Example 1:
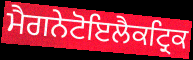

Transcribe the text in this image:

ਮੈਗਨੇਟੋਇਲੈਕਟ੍ਰਿਕ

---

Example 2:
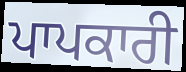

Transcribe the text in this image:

ਪਾਪਕਾਰੀ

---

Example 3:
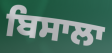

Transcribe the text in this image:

ਬਿਸਾਲਾ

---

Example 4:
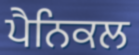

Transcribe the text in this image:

ਪੈਨਿਕਲ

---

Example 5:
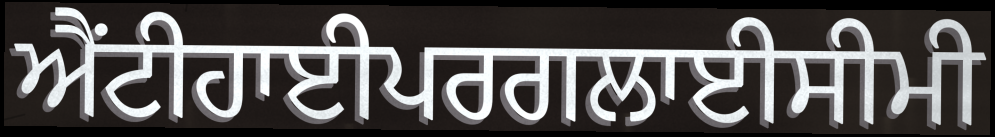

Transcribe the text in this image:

ਐਂਟੀਹਾਈਪਰਗਲਾਈਸੀਮੀ